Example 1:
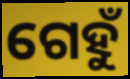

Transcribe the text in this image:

ଗେହୁଁ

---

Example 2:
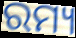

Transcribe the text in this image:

ରମ୍ୟ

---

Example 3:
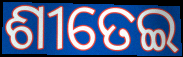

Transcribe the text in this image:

ଶୀତେଇ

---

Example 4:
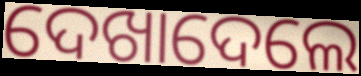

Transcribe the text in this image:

ଦେଖାଦେଲେ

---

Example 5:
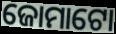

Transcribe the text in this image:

ଜୋମାଟୋ